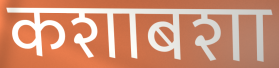
कशाबशा